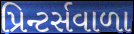
પ્રિન્ટર્સવાળા